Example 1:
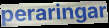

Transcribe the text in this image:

peraringar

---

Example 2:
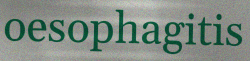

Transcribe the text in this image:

oesophagitis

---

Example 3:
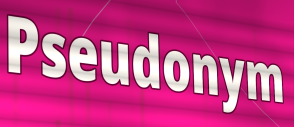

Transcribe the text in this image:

Pseudonym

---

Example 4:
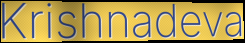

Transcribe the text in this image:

Krishnadeva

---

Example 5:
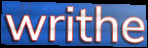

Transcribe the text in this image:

writhe